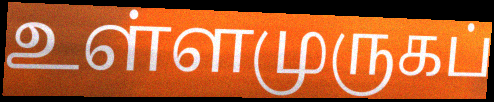
உள்ளமுருகப்